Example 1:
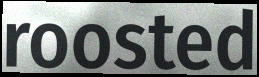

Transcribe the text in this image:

roosted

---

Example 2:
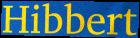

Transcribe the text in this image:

Hibbert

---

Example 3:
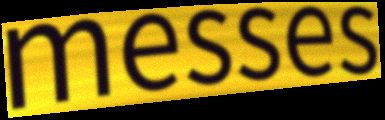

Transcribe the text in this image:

messes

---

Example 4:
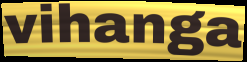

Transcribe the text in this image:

vihanga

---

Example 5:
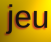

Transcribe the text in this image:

jeu